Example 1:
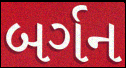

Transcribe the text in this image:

બર્ગન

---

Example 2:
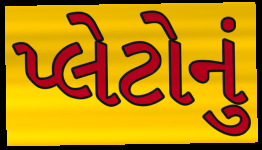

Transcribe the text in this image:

પ્લેટોનું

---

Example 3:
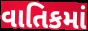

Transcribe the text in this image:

વાતિકમાં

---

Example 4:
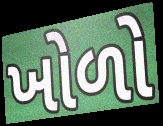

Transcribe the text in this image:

ખોળો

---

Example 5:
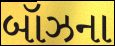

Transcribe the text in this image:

બૉઝના